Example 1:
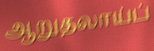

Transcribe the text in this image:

ஆறுதலாய்ப்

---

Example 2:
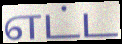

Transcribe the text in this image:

எட்ட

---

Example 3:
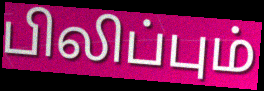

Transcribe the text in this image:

பிலிப்பும்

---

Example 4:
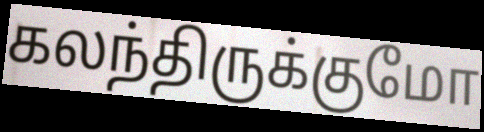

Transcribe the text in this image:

கலந்திருக்குமோ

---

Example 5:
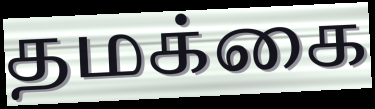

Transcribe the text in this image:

தமக்கை